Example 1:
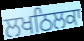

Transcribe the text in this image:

ਲਖਠਿਲਕਾ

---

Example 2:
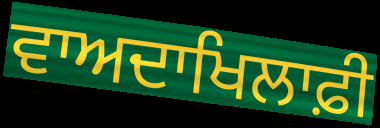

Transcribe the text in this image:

ਵਾਅਦਾਖਿਲਾਫ਼ੀ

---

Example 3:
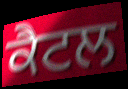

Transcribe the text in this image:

ਕੈਟਲ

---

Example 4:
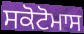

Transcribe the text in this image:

ਸਕੋਟੋਮਾਸ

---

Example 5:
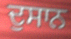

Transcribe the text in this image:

ਦੁਸਾਨ